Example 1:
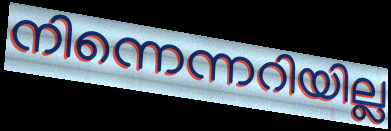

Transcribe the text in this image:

നിന്നെന്നറിയില്ല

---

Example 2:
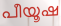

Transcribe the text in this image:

പീയൂഷ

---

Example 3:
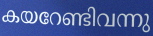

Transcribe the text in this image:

കയറേണ്ടിവന്നു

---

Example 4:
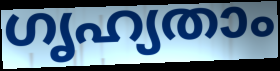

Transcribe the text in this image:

ഗൃഹ്യതാം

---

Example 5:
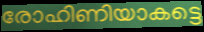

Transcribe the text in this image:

രോഹിണിയാകട്ടെ